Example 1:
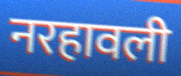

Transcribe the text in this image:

नरहावली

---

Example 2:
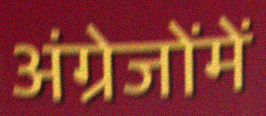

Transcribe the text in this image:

अंग्रेजोंमें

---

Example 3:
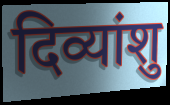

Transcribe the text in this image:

दिव्यांशु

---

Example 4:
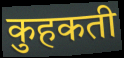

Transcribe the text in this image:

कुहकती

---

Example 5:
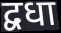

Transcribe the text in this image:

द्वधा